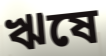
ঋষে